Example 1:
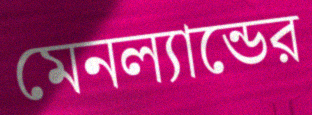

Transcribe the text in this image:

মেনল্যান্ডের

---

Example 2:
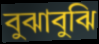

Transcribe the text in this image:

বুঝাবুঝি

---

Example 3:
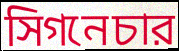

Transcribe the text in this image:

সিগনেচার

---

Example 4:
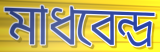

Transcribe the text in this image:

মাধবেন্দ্র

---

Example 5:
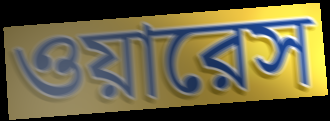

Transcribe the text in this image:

ওয়ারেস